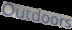
Outdoors